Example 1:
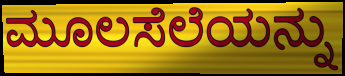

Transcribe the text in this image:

ಮೂಲಸೆಲೆಯನ್ನು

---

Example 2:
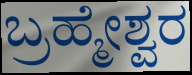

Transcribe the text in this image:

ಬ್ರಹ್ಮೇಶ್ವರ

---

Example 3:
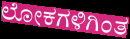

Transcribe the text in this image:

ಲೋಕಗಳಿಗಿಂತ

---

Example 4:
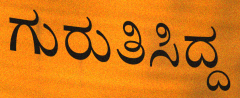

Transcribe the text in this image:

ಗುರುತಿಸಿದ್ದ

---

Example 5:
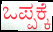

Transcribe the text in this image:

ಒಪ್ಪಕ್ಕೆ